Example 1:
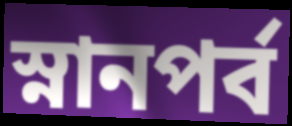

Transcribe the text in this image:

স্নানপর্ব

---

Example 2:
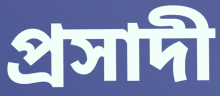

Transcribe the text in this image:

প্রসাদী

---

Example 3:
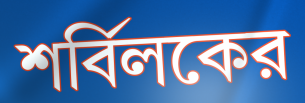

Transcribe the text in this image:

শর্বিলকের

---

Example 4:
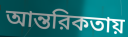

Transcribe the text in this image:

আন্তরিকতায়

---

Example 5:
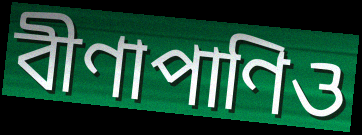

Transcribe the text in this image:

বীণাপাণিও